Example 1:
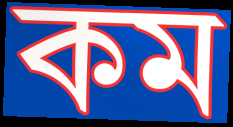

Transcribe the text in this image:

কম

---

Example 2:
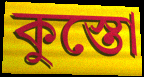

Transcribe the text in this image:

কুস্তো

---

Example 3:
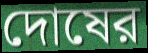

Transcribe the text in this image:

দোষের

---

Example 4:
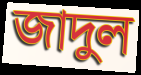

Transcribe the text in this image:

জাদুল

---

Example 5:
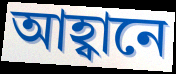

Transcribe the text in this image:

আহ্বানে